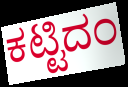
ಕಟ್ಟಿದಂ